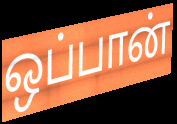
ஒப்பான்